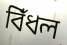
বিঁধল